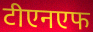
टीएनएफ